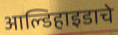
आल्डिहाइडाचे